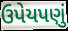
ઉપેયપણું